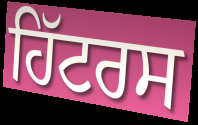
ਹਿੱਟਰਸ